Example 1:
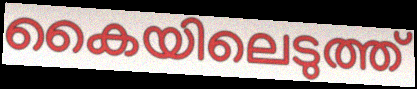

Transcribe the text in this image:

കൈയിലെടുത്ത്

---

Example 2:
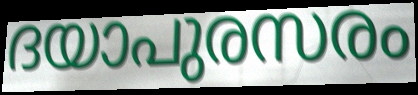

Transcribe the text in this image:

ദയാപുരസരം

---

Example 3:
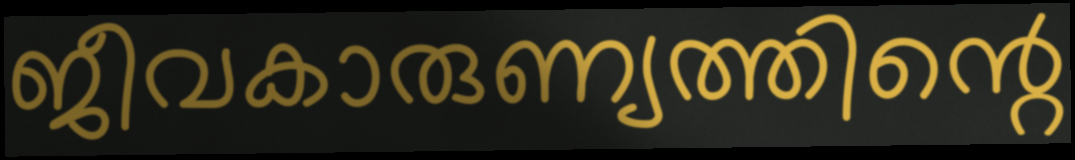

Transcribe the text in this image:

ജീവകാരുണ്യത്തിന്റെ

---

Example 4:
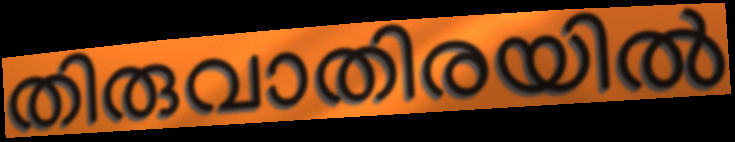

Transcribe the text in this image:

തിരുവാതിരയിൽ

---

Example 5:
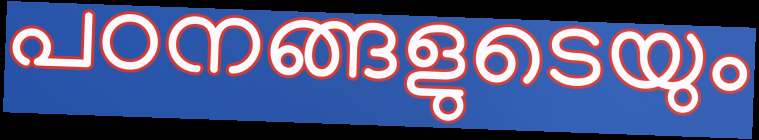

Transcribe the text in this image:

പഠനങ്ങളുടെയും